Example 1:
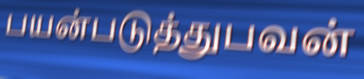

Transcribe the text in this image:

பயன்படுத்துபவன்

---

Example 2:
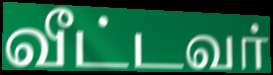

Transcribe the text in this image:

வீட்டவர்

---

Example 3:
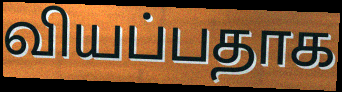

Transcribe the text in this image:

வியப்பதாக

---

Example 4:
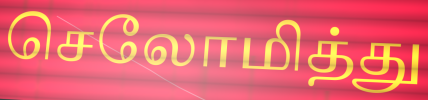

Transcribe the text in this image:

செலோமித்து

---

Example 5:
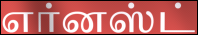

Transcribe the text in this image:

எர்னஸ்ட்